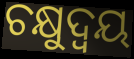
ଚକ୍ଷୁଦ୍ୱୟ